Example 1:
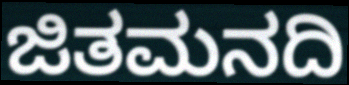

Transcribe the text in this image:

ಜಿತಮನದಿ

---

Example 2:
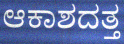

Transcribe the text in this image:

ಆಕಾಶದತ್ತ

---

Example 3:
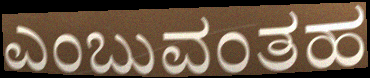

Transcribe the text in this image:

ಎಂಬುವಂತಹ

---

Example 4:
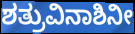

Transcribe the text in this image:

ಶತ್ರುವಿನಾಶಿನೀ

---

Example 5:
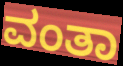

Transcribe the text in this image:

ವಂತಾ